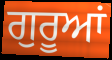
ਗੁਰੂਆਂ